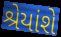
શ્રેયાંશે